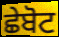
ਛੇਬੋਟ